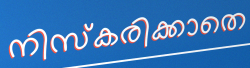
നിസ്കരിക്കാതെ